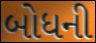
બોધની